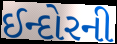
ઈન્દોરની